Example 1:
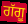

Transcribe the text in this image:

ਗੱਗੂ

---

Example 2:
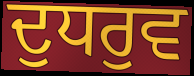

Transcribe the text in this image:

ਦੁਧਰੁਵ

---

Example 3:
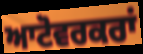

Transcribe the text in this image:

ਆਟੋਵਰਕਰਾਂ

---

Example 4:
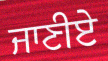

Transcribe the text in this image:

ਜਾਣੀਏ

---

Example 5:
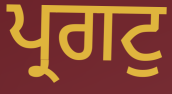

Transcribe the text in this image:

ਪ੍ਰਗਟੁ